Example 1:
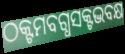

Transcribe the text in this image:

ଠକ୍ଟମବଗ୍ଧସକ୍ଟଦ୍ଭବକ୍ଷ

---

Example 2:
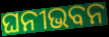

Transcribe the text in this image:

ଘନୀଭବନ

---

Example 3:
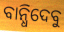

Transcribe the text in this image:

ବାନ୍ଧିଦେବୁ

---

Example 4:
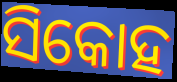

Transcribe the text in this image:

ସିକୋହ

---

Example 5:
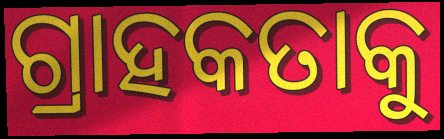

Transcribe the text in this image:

ଗ୍ରାହକତାକୁ